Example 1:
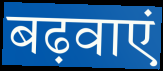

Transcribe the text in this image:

बढ़वाएं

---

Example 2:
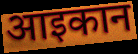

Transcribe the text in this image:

आइकान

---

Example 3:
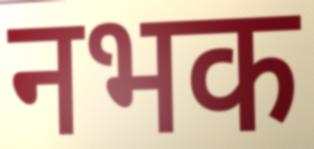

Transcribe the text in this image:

नभक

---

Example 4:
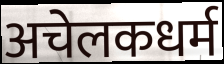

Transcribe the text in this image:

अचेलकधर्म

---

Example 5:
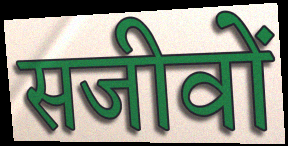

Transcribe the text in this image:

सजीवों